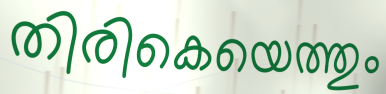
തിരികെയെത്തും